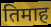
तिमाह